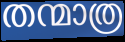
തന്മാത്ര